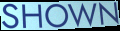
SHOWN